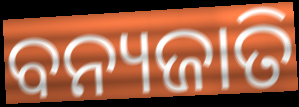
ବନ୍ୟଜାତି